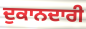
ਦੁਕਾਨਦਾਰੀ